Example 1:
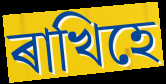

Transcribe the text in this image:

ৰাখিহে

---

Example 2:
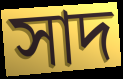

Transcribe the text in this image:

সাদ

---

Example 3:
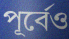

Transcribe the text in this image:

পূৰ্বেও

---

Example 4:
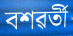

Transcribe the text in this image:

বশৱৰ্তী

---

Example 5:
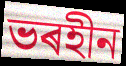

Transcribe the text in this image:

ভৰহীন